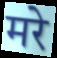
मरे